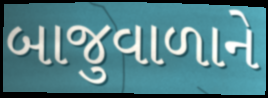
બાજુવાળાને